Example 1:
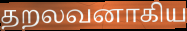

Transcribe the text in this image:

தறலவனாகிய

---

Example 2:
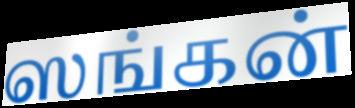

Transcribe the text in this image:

ஸங்கன்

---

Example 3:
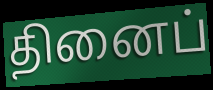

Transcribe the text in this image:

தினைப்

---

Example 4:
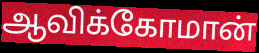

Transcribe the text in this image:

ஆவிக்கோமான்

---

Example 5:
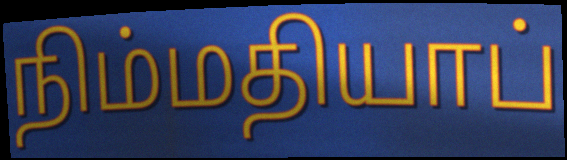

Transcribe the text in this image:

நிம்மதியாப்